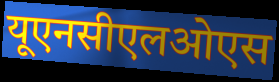
यूएनसीएलओएस